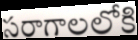
సరాగాలలోకి